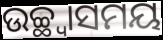
ଉଚ୍ଛ୍ଵାସମୟ